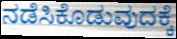
ನಡೆಸಿಕೊಡುವುದಕ್ಕೆ